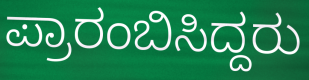
ಪ್ರಾರಂಬಿಸಿದ್ದರು